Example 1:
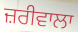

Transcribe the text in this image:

ਜ਼ਰੀਵਾਲਾ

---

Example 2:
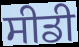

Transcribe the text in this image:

ਸੀਡੀ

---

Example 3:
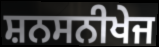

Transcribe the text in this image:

ਸ਼ਨਸਨੀਖੇਜ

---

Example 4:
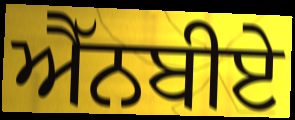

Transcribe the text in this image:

ਐੱਨਬੀਏ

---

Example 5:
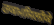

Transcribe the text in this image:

ਰਕਮਸਿਲੀਕੇ